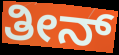
ತೀನ್